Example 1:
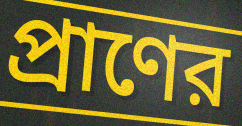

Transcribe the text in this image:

প্রাণের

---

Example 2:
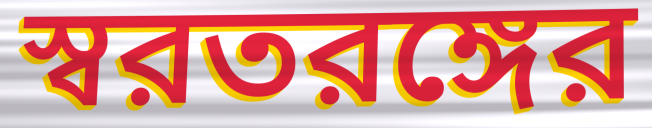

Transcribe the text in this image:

স্বরতরঙ্গের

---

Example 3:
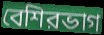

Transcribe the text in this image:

বেশিরভাগ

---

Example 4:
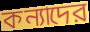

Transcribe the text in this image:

কন্যাদের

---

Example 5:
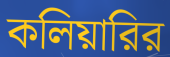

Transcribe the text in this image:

কলিয়ারির